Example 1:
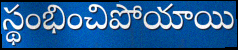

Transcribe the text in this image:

స్థంభించిపోయాయి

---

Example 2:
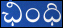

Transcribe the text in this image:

ఛింధి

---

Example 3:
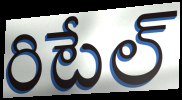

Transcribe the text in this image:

రిటేల్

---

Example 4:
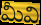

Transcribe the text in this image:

మీవి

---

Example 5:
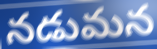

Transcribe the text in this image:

నడుమన